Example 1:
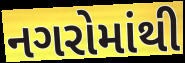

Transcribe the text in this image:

નગરોમાંથી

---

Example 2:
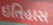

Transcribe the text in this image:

ઇતિહાસ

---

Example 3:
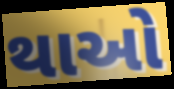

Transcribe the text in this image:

થાઓ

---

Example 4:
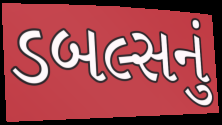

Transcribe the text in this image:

ડબલ્સનું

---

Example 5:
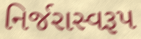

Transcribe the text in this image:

નિર્જરાસ્વરૂપ